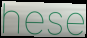
hese